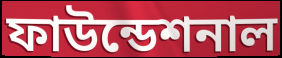
ফাউন্ডেশনাল